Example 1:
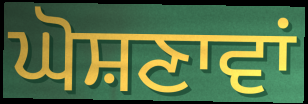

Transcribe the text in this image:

ਘੋਸ਼ਣਾਵਾਂ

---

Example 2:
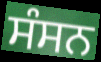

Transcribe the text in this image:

ਸੰਸਨ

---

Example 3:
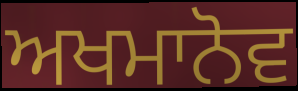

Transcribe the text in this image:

ਅਖਮਾਨੋਵ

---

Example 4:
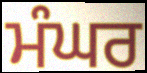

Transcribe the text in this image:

ਮੰਘਰ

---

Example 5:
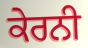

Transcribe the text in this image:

ਕੇਰਨੀ